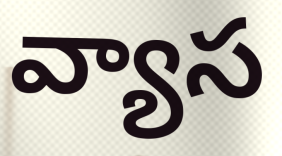
వ్యాస